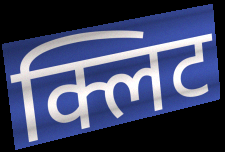
क्लिट